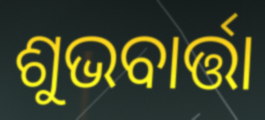
ଶୁଭବାର୍ତ୍ତା